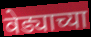
वेड्याच्या